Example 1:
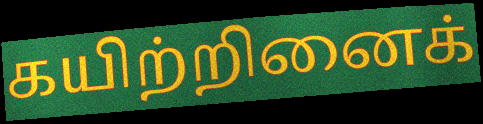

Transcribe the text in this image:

கயிற்றினைக்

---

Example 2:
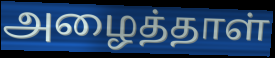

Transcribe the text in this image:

அழைத்தாள்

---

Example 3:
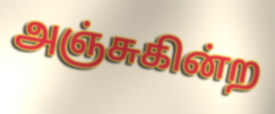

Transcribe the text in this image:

அஞ்சுகின்ற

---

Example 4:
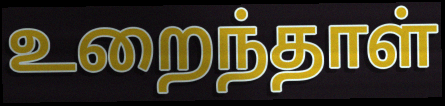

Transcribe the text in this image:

உறைந்தாள்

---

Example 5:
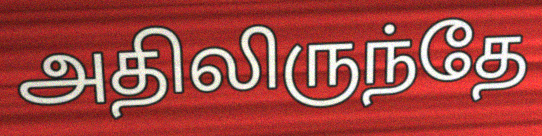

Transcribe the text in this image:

அதிலிருந்தே